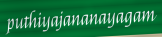
puthiyajananayagam